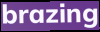
brazing